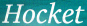
Hocket